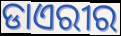
ଡାଏରୀର